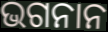
ଭଗନାନ